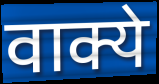
वाक्ये